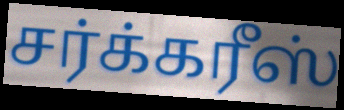
சர்க்கரீஸ்